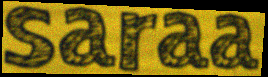
saraa